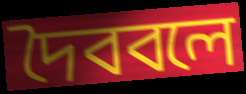
দৈববলে